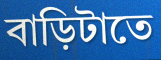
বাড়িটাতে